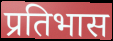
प्रतिभास